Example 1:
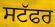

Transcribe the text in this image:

ਸਟੱਫਰ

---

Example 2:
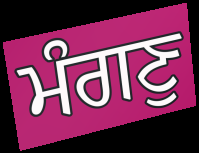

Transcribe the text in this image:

ਮੰਗਣੁ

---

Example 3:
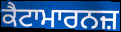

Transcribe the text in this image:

ਕੈਟਾਮਾਰਨਜ਼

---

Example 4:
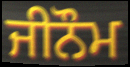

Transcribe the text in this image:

ਜੀਨੌਮ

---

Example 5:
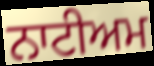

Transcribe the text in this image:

ਨਾਟੀਅਮ